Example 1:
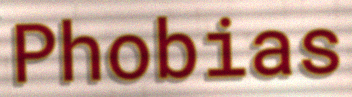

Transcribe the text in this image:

Phobias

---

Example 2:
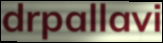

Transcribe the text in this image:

drpallavi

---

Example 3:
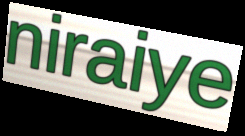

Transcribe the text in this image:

niraiye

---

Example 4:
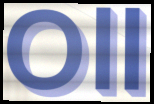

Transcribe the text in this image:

Oll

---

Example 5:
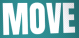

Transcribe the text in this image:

MOVE